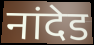
नांदेड